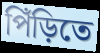
পিঁড়িতে